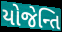
યોજેન્તિ